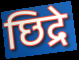
छिद्रे